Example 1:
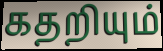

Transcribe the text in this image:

கதறியும்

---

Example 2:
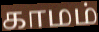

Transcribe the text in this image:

காமம்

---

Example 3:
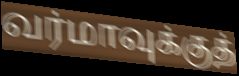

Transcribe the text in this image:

வர்மாவுக்குத்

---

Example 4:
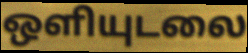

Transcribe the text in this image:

ஒளியுடலை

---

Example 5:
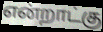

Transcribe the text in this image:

என்றாட்கு